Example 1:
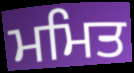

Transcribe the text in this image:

ਮਮਿਤ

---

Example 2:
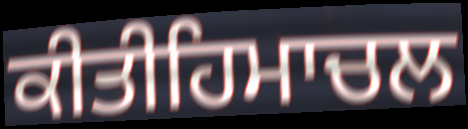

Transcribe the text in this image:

ਕੀਤੀਹਿਮਾਚਲ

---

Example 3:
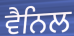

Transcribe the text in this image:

ਵੈਨਿਲ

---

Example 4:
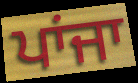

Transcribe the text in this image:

ਪਾਂਜਾ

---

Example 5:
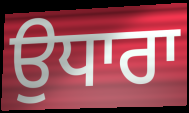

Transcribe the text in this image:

ਉਧਾਰਾ